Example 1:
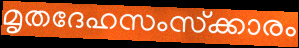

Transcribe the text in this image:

മൃതദേഹസംസ്‌ക്കാരം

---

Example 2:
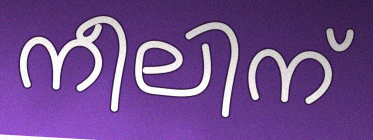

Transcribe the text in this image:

നീലിന്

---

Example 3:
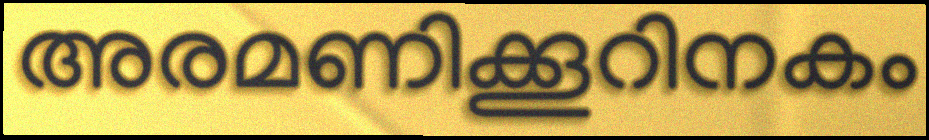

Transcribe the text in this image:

അരമണിക്കൂറിനകം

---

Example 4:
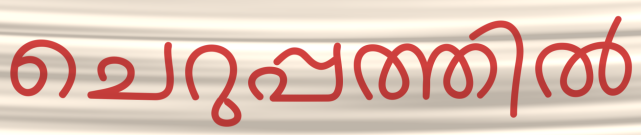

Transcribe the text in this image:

ചെറുപ്പത്തിൽ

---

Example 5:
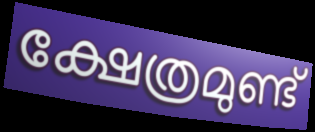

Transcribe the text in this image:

ക്ഷേത്രമുണ്ട്